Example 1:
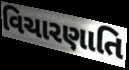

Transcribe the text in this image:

વિચારણાતિ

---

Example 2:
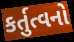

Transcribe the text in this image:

કર્તુત્વનો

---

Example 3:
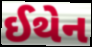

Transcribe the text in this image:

ઈથેન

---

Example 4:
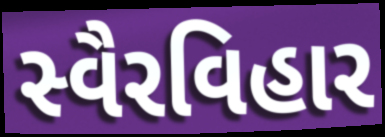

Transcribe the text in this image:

સ્વૈરવિહાર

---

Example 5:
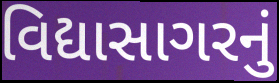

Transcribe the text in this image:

વિદ્યાસાગરનું